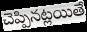
చెప్పినట్లయితే